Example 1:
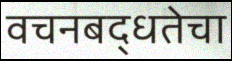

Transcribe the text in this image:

वचनबद्धतेचा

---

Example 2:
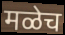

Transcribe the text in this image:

मळेच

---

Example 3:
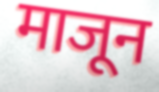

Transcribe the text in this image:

माजून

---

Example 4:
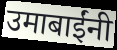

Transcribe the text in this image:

उमाबाईंनी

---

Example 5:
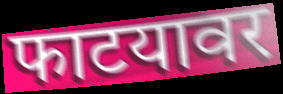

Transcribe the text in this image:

फाटयावर